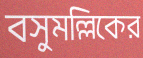
বসুমল্লিকের